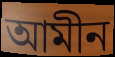
আমীন